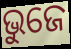
ଭୁଜେ